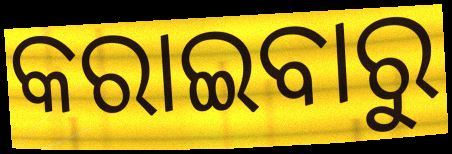
କରାଇବାରୁ